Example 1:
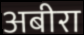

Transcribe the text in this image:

अबीरा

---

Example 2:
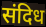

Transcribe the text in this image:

संदिध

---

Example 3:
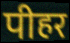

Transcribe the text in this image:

पीहर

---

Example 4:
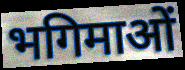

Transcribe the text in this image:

भगिमाओं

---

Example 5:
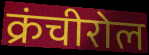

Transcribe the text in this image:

क्रंचीरोल